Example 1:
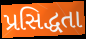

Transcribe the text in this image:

પ્રસિદ્ધતા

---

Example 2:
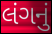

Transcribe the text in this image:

લંગનું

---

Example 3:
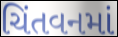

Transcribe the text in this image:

ચિંતવનમાં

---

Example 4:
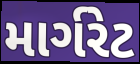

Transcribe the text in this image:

માર્ગરેટ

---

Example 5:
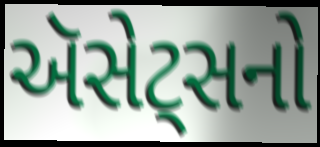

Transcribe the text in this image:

ઍસેટ્સનો